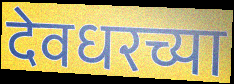
देवधरच्या